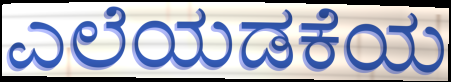
ಎಲೆಯಡಕೆಯ